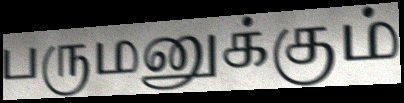
பருமனுக்கும்